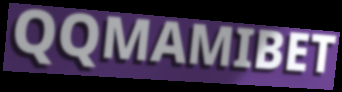
QQMAMIBET